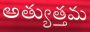
అత్యుత్తమ